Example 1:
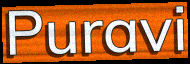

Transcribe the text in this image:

Puravi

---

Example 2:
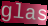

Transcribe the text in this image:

glas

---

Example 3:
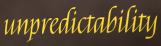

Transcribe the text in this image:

unpredictability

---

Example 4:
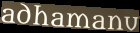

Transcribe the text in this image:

adhamanu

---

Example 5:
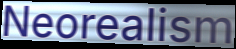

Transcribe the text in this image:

Neorealism